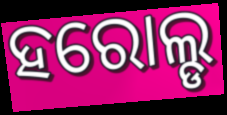
ହରୋଲ୍ଡ